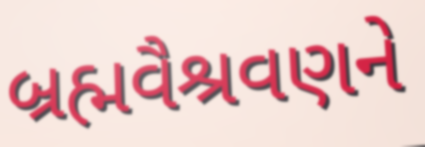
બ્રહ્મવૈશ્રવણને